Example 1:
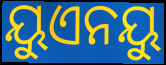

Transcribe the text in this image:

ୟୁଏନୟୁ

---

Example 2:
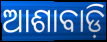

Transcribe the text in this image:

ଆଶାବାଡ଼ି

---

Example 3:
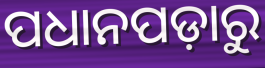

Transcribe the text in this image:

ପଧାନପଡ଼ାରୁ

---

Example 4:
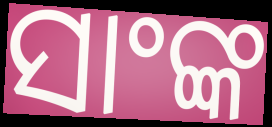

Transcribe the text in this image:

ସାଂଙ୍କ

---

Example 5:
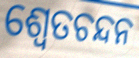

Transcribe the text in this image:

ଶ୍ୱେତଚନ୍ଦନ